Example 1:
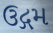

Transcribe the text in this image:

ઉદ્ગમ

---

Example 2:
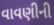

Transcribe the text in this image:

વાવણીની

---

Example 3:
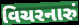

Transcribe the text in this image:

વિચરનારું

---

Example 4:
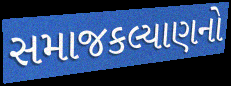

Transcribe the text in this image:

સમાજકલ્યાણનો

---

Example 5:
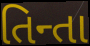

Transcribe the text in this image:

તિન્તા